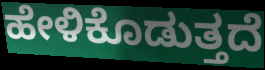
ಹೇಳಿಕೊಡುತ್ತದೆ